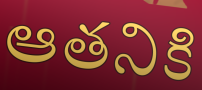
ఆతనికి